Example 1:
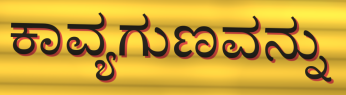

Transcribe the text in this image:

ಕಾವ್ಯಗುಣವನ್ನು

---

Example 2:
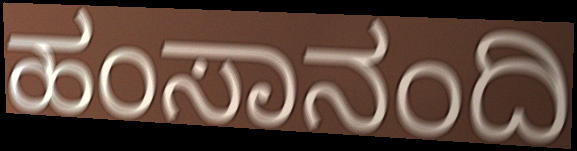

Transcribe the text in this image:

ಹಂಸಾನಂದಿ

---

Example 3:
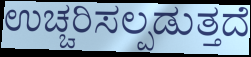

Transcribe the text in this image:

ಉಚ್ಚರಿಸಲ್ಪಡುತ್ತದೆ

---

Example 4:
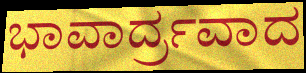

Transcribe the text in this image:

ಭಾವಾರ್ದ್ರವಾದ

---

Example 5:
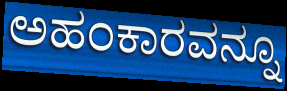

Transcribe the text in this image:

ಅಹಂಕಾರವನ್ನೂ